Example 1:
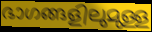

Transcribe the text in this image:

ഭാഗങ്ങളിലുമുള്ള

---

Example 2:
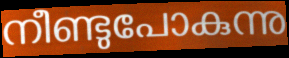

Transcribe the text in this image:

നീണ്ടുപോകുന്നു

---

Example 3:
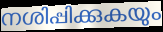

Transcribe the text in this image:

നശിപ്പിക്കുകയും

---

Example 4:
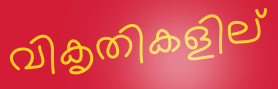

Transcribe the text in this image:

വികൃതികളില്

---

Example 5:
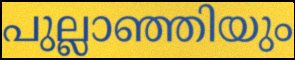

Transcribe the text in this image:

പുല്ലാഞ്ഞിയും